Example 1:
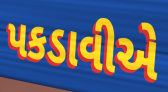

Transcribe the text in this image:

પકડાવીએ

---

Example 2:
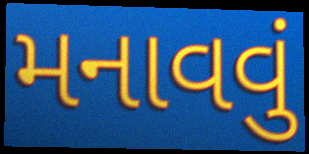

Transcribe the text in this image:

મનાવવું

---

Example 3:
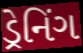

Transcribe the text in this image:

ડ્રેનિંગ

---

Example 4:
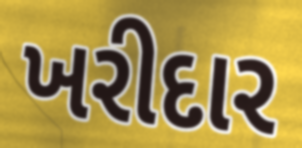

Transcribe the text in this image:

ખરીદાર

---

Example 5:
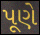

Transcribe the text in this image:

પૂણે